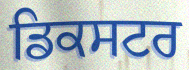
ਡਿਕਸਟਰ